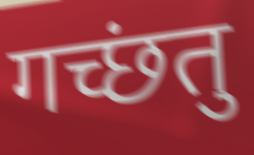
गच्छंतु